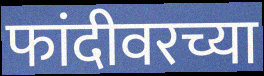
फांदीवरच्या